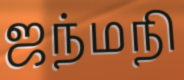
ஜந்மநி